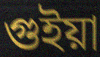
গুইয়া